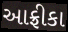
આફ્રીકા